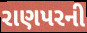
રાણપરની